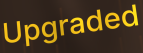
Upgraded